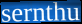
sernthu